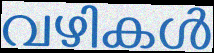
വഴികൾ